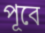
পূবে